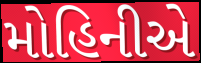
મોહિનીએ